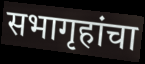
सभागृहांचा